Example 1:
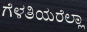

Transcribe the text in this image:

ಗೆಳತಿಯರೆಲ್ಲಾ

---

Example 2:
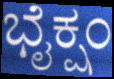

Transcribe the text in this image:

ಭೈಕ್ಷಂ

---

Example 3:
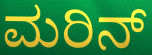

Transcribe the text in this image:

ಮರಿನ್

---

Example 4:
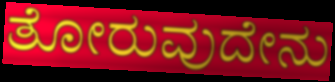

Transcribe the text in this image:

ತೋರುವುದೇನು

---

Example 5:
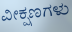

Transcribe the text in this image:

ವೀಕ್ಷಣಗಳು